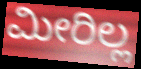
ಮೀರಿಲ್ಲ